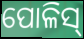
ପୋଳିସ୍